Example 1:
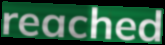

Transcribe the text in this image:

reached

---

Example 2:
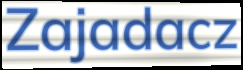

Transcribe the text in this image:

Zajadacz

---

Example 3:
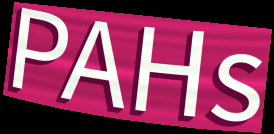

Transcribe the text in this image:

PAHs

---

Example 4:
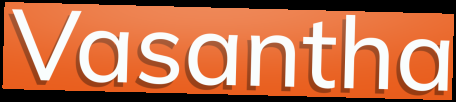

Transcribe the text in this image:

Vasantha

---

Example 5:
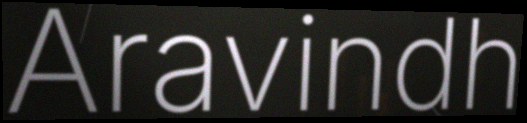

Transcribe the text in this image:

Aravindh